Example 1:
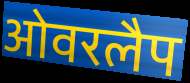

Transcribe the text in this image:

ओवरलैप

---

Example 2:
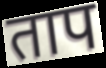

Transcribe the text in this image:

ताप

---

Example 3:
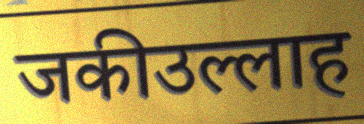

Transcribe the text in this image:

जकीउल्लाह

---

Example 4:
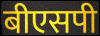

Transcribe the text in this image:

बीएसपी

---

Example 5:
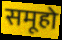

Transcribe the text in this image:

समूहो